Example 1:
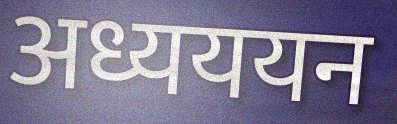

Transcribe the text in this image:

अध्यययन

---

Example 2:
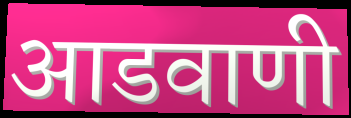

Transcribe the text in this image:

आडवाणी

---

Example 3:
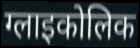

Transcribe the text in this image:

ग्लाइकोलिक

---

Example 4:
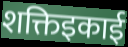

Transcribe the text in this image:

शक्तिइकाई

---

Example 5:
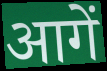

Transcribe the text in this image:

आगें